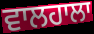
ਵਾਲਹਾਲਾ